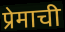
प्रेमाची